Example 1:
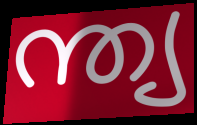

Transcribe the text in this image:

ന്ത്യ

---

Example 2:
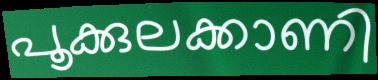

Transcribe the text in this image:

പൂക്കുലക്കാണി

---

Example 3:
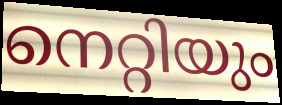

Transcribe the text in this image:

നെറ്റിയും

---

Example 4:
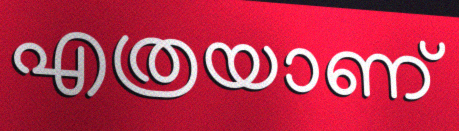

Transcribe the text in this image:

എത്രയാണ്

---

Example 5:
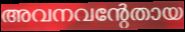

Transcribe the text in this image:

അവനവന്റേതായ